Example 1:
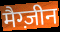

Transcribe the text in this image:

मैग्ज़ीन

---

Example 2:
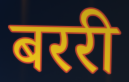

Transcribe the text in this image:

बररी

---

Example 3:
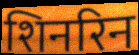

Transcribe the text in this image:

शिनरिन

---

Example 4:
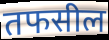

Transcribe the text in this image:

तफसील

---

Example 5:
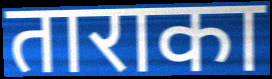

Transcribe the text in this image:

ताराका